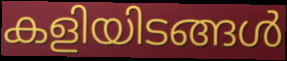
കളിയിടങ്ങൾ